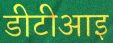
डीटीआइ